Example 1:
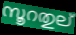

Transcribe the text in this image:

സൂറതുല്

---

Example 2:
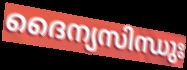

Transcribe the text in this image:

ദൈന്യസിന്ധുഃ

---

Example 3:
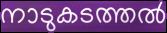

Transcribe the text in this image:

നാടുകടത്തൽ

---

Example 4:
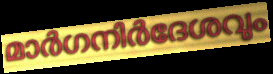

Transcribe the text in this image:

മാർഗനിർദേശവും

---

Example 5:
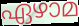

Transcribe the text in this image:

ഏഴാമ